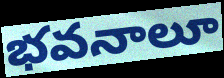
భవనాలూ